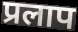
प्रलाप